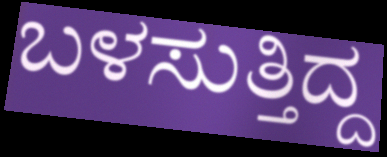
ಬಳಸುತ್ತಿದ್ದ